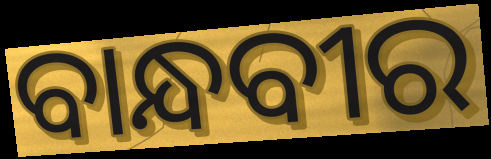
ବାନ୍ଧବୀର